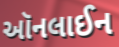
ઑનલાઈન